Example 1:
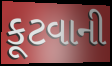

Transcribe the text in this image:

કૂટવાની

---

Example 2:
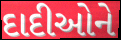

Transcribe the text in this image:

દાદીઓને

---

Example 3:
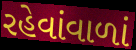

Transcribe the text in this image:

રહેવાંવાળાં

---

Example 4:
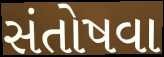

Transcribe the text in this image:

સંતોષવા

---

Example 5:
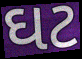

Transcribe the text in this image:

ઘટ